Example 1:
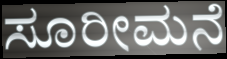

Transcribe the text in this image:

ಸೂರೀಮನೆ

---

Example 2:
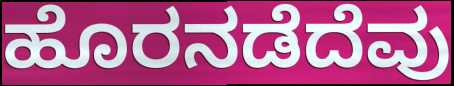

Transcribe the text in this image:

ಹೊರನಡೆದೆವು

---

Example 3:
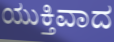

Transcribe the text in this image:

ಯುಕ್ತಿವಾದ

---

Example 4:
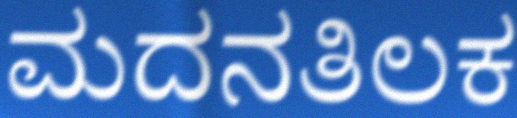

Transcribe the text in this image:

ಮದನತಿಲಕ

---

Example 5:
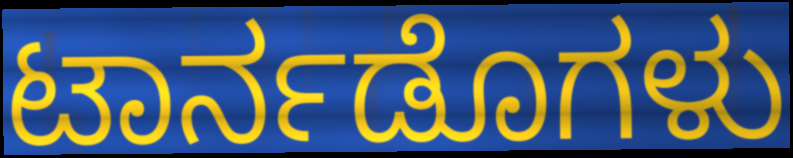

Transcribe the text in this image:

ಟಾರ್ನಡೊಗಳು